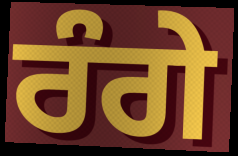
ਰੰਗੇ